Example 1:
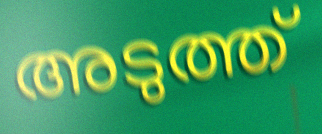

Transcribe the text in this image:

അടുത്ത്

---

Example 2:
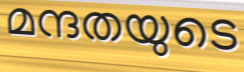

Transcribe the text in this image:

മന്ദതയുടെ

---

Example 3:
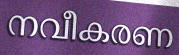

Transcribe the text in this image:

നവീകരണ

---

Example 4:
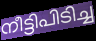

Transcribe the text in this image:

നീട്ടിപിടിച്ച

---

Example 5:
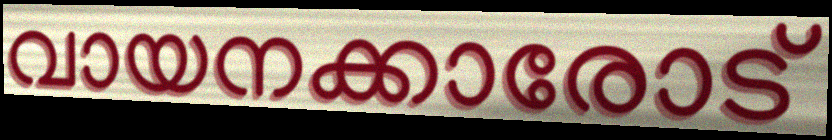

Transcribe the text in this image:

വായനക്കാരോട്